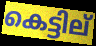
കെട്ടില്